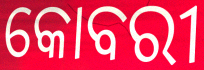
କୋବରୀ